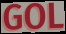
GOL